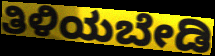
ತಿಳಿಯಬೇಡಿ